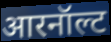
आरनॉल्ट